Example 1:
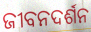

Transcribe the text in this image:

ଜୀବନଦର୍ଶନ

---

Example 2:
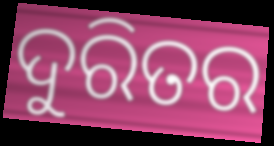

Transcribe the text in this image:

ଦୁରିତର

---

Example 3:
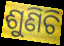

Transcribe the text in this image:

ଶୁଣିଚି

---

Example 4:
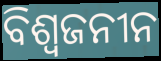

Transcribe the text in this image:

ବିଶ୍ୱଜନୀନ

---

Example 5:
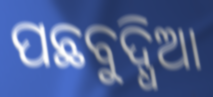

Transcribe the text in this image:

ପଛବୁଦ୍ଧିଆ